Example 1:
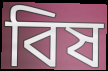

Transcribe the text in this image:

বিষ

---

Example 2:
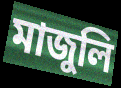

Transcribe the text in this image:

মাজুলি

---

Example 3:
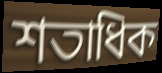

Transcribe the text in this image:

শতাধিক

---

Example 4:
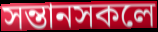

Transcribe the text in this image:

সন্তানসকলে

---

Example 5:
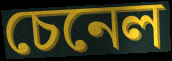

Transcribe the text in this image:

চেনেল